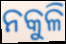
ନକୁଳି